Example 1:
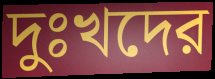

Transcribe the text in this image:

দুঃখদের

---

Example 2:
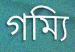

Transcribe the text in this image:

গম্যি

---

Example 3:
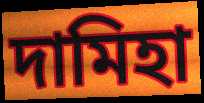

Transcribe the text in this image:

দামিহা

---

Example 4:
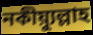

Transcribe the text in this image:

নকীয়্যুল্লাহ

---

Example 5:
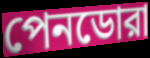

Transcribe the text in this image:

পেনডোরা